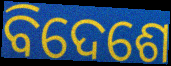
ବିଦେଶେ